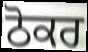
ਠੋਕਰ